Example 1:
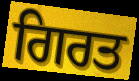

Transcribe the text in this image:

ਗਿਰਤ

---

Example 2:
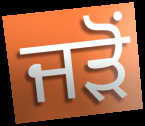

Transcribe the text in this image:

ਜੜੋਂ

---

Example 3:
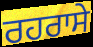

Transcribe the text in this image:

ਰਹਰਾਸੇ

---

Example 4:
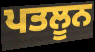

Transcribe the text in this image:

ਪਤਲੂਨ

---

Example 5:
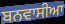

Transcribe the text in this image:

ਬਨਵਾਸੀਆ